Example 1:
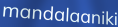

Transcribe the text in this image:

mandalaaniki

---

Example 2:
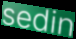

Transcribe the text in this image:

sedin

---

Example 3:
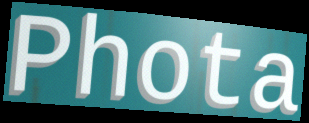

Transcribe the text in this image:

Phota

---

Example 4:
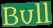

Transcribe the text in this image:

Bull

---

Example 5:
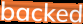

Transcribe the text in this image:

backed